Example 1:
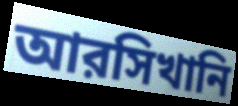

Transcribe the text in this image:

আরসিখানি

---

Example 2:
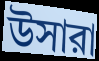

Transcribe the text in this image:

উসারা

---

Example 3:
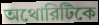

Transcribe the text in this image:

অথোরিটিকে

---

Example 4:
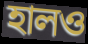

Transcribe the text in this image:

হালও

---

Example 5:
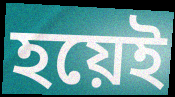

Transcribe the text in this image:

হয়েই